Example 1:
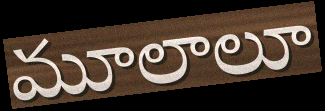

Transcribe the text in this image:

మూలాలూ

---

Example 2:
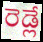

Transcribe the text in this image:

రెడ్లే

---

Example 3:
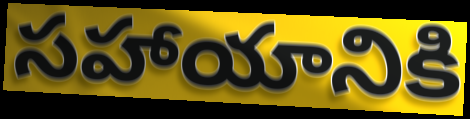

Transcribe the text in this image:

సహాయానికి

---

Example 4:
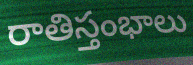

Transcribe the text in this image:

రాతిస్తంభాలు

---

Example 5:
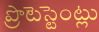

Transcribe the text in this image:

ప్రొటెస్టెంట్లు